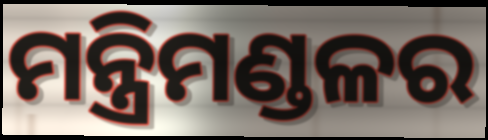
ମନ୍ତ୍ରିମଣ୍ଡଳର